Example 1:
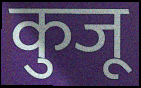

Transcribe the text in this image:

कुजू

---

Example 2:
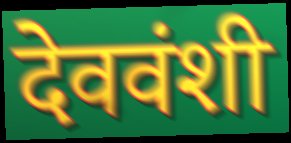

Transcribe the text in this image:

देववंशी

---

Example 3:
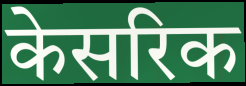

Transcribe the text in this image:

केसरिक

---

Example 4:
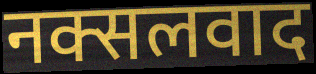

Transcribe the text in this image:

नक्सलवाद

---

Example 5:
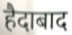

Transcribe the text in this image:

हैदाबाद